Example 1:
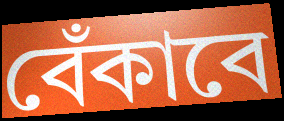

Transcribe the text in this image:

বেঁকাবে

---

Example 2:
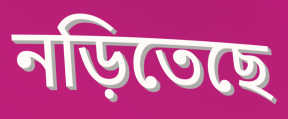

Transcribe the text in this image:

নড়িতেছে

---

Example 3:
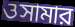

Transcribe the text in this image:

ওসামার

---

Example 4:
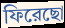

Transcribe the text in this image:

ফিরেছো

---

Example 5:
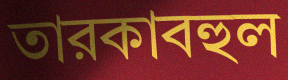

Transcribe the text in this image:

তারকাবহুল